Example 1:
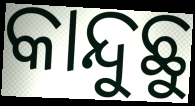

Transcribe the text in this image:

କାନ୍ଦୁଛୁ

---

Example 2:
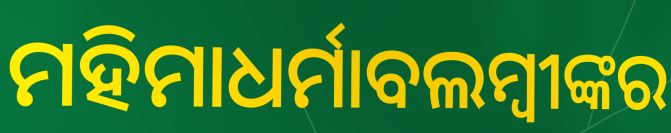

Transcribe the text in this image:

ମହିମାଧର୍ମାବଲମ୍ବୀଙ୍କର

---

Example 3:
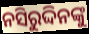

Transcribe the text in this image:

ନସିରୁଦ୍ଦିନଙ୍କୁ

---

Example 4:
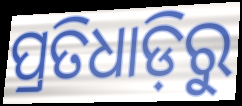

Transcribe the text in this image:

ପ୍ରତିଧାଡ଼ିରୁ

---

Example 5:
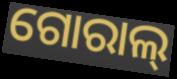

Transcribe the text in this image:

ଗୋରାଲ୍